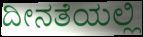
ದೀನತೆಯಲ್ಲಿ